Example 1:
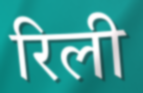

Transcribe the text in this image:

रिली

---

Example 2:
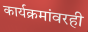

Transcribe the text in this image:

कार्यक्रमांवरही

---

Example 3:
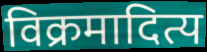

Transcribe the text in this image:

विक्रमादित्य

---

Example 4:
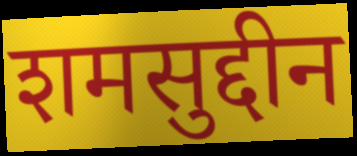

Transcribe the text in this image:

शमसुद्दीन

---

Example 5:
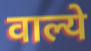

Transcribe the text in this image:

वाल्ये